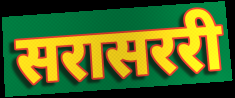
सरासररी